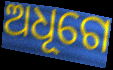
ଅଧୂଗେ